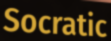
Socratic